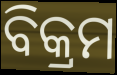
ବିକ୍ରମ